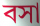
বসা